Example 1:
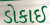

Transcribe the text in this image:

ડોકાઈ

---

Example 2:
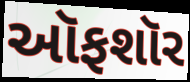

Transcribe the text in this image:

ઑફશૉર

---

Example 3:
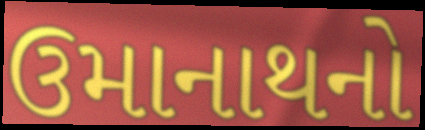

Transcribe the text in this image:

ઉમાનાથનો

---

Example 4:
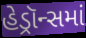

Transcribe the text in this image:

હેડ્રૉન્સમાં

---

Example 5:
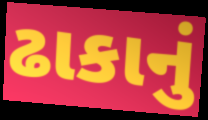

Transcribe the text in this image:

ઢાકાનું